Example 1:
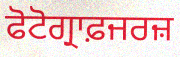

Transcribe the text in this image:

ਫੋਟੋਗ੍ਰਾਫ਼ਜਰਜ਼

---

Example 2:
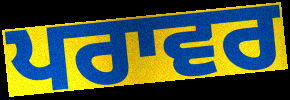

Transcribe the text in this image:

ਪਰਾਵਰ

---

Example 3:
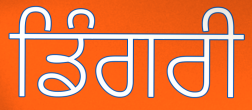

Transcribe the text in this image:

ਡਿੰਗਰੀ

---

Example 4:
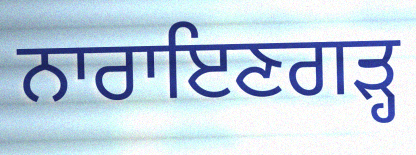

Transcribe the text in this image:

ਨਾਰਾਇਣਗੜ੍ਹ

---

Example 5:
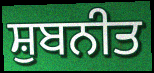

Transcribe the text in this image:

ਸ਼ੁਬਨੀਤ